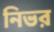
নিভর